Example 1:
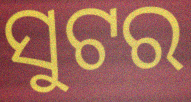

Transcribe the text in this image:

ସୁଟର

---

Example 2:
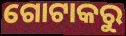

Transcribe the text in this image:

ଗୋଟାକରୁ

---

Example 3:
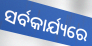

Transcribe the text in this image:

ସର୍ବକାର୍ଯ୍ୟରେ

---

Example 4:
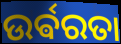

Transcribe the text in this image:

ଉର୍ଵରତା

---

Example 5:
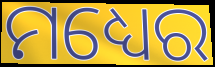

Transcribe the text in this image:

ମଧ୍ୟେର